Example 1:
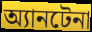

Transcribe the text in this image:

অ্যানটেনা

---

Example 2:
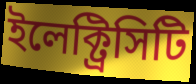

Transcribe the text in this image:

ইলেক্ট্রিসিটি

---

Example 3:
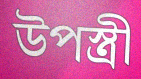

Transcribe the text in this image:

উপস্ত্রী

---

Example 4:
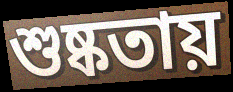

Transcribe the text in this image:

শুষ্কতায়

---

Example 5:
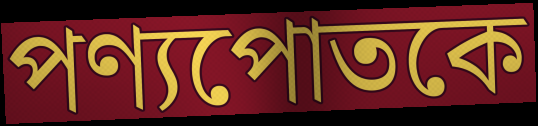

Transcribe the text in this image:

পণ্যপোতকে